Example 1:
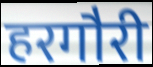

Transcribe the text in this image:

हरगौरी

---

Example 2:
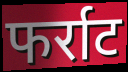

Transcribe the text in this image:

फर्राट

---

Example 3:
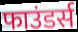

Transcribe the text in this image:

फाउंडर्स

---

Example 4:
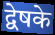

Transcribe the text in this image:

द्वेषके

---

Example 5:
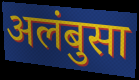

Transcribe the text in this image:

अलंबुसा